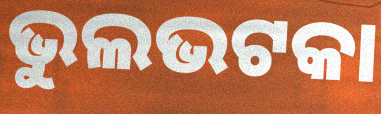
ଭୁଲଭଟକା